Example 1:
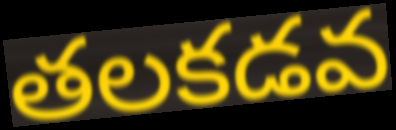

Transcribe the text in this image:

తలకడవ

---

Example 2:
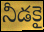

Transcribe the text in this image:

నీడకై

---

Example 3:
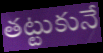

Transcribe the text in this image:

తట్టుకునే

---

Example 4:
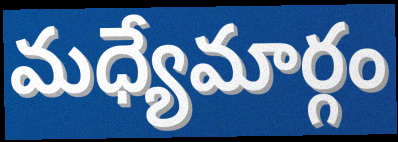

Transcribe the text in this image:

మధ్యేమార్గం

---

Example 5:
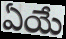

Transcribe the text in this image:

ఏయే